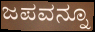
ಜಪವನ್ನೂ